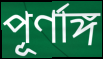
পূর্ণাঙ্গ